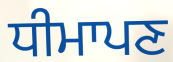
ਧੀਮਾਪਣ